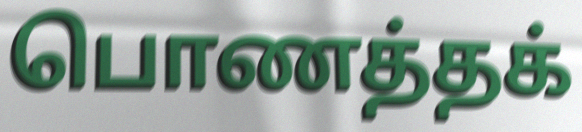
பொணத்தக்